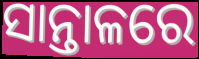
ସାନ୍ତାଳରେ